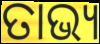
ତାଭ୍ୟ